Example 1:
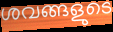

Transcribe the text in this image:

ശവങ്ങളുടെ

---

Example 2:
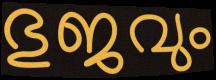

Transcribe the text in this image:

ഭുജവും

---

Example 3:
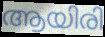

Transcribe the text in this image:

ആയിരി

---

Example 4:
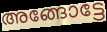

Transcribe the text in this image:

അങ്ങോട്ടേ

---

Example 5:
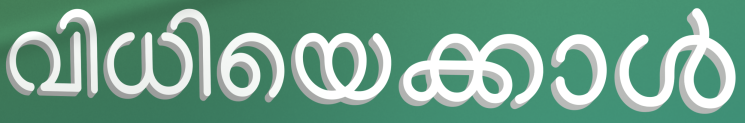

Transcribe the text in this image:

വിധിയെക്കാൾ